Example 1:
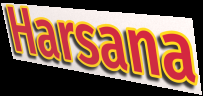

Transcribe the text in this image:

Harsana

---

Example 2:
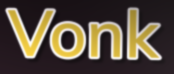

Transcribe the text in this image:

Vonk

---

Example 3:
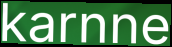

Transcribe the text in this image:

karnne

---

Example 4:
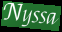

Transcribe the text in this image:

Nyssa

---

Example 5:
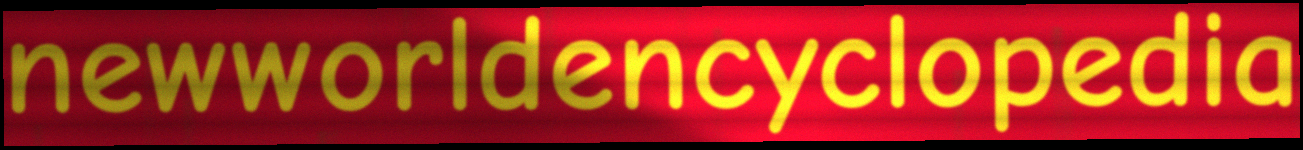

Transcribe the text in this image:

newworldencyclopedia